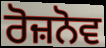
ਰੋਜ਼ਨੋਵ